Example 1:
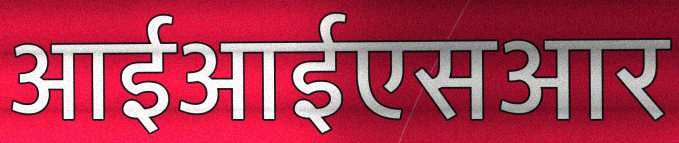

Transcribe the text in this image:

आईआईएसआर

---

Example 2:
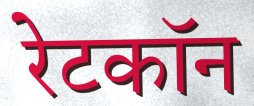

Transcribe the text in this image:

रेटकॉन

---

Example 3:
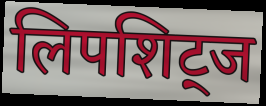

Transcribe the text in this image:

लिपशिट्ज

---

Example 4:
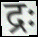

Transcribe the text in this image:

द्रः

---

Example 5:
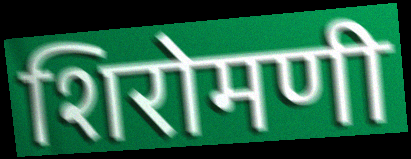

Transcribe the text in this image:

शिरोमणी